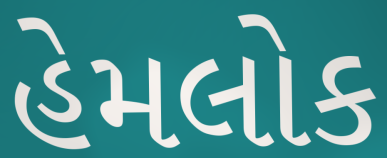
હેમલોક